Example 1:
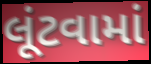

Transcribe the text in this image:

લૂંટવામાં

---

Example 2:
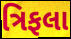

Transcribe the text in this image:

ત્રિફલા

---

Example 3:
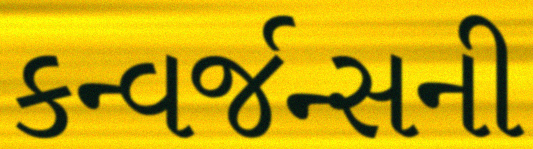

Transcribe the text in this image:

કન્વર્જન્સની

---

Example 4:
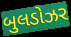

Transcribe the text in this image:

બુલડોઝર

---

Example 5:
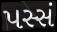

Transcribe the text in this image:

પસ્સં